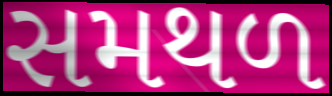
સમથળ